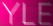
YLE